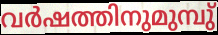
വർഷത്തിനുമുമ്പു്